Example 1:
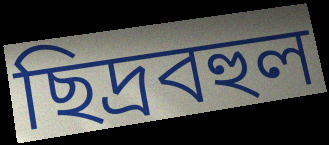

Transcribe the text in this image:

ছিদ্রবহুল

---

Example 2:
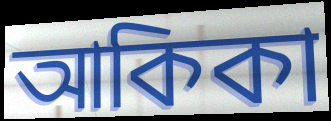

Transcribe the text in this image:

আকিকা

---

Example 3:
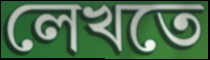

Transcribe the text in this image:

লেখতে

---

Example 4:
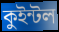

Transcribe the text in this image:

কুইন্টল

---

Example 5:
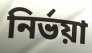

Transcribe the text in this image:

নির্ভয়া